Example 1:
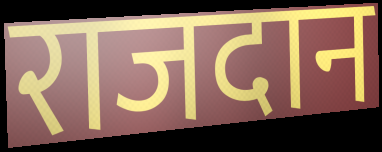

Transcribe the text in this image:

राजदान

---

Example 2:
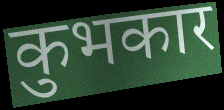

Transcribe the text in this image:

कुभकार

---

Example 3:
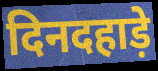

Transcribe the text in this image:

दिनदहाड़े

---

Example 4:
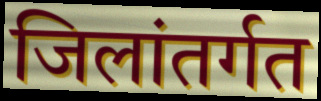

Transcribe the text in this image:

जिलांतर्गत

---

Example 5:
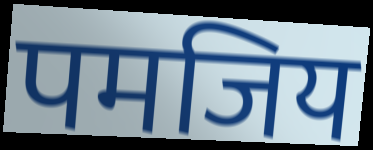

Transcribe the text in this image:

पमजिय